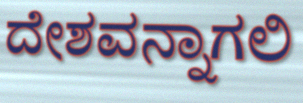
ದೇಶವನ್ನಾಗಲಿ